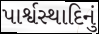
પાર્શ્વસ્થાદિનું